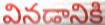
వినడానికి